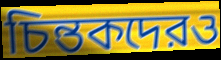
চিন্তকদেরও